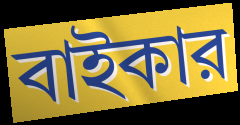
বাইকার